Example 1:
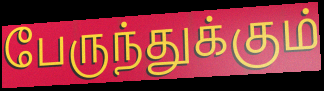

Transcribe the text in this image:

பேருந்துக்கும்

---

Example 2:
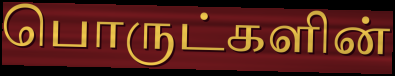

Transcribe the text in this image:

பொருட்களின்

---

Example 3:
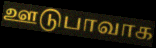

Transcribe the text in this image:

ஊடுபாவாக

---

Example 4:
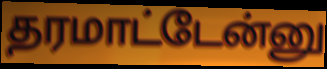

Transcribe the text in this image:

தரமாட்டேன்னு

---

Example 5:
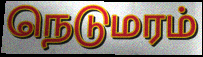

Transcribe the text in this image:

நெடுமரம்